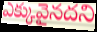
ఎక్కువైనదని